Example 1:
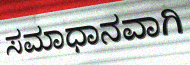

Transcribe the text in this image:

ಸಮಾಧಾನವಾಗಿ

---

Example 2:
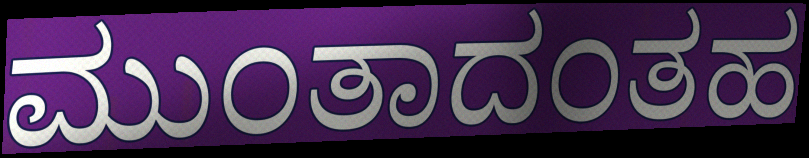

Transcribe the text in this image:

ಮುಂತಾದಂತಹ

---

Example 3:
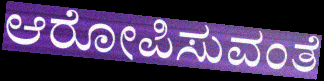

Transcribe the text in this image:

ಆರೋಪಿಸುವಂತೆ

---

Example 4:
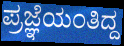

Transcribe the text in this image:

ಪ್ರಜ್ಞೆಯಂತಿದ್ದ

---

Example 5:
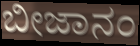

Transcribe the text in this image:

ಬೀಜಾನಂ